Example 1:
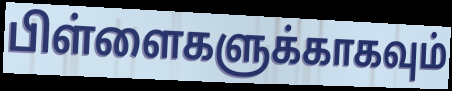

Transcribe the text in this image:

பிள்ளைகளுக்காகவும்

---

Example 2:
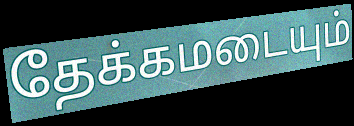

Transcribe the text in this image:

தேக்கமடையும்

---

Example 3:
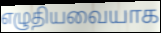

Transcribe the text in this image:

எழுதியவையாக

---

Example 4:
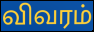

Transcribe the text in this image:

விவரம்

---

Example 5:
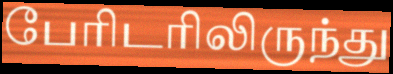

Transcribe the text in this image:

பேரிடரிலிருந்து